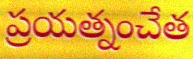
ప్రయత్నంచేత